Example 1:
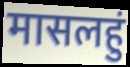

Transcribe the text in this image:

मासलहुं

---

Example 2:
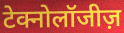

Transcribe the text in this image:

टेक्नोलॉजीज़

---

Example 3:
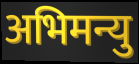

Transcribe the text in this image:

अभिमन्यु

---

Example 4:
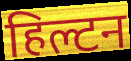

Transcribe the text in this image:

हिल्टन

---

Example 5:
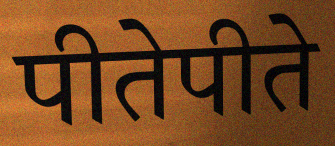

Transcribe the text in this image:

पीतेपीते